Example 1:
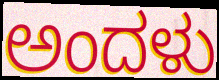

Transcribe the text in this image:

ಅಂದಳು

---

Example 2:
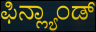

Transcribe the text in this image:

ಫಿನ್ಲ್ಯಾಂಡ್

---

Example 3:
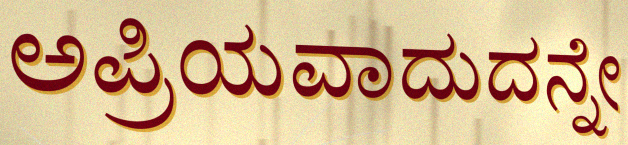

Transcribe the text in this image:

ಅಪ್ರಿಯವಾದುದನ್ನೇ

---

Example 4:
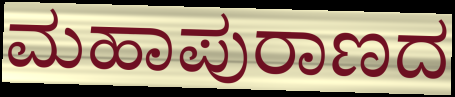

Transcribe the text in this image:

ಮಹಾಪುರಾಣದ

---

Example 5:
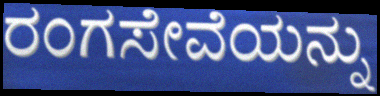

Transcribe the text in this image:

ರಂಗಸೇವೆಯನ್ನು